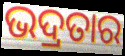
ଭଦ୍ରତାର